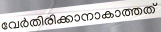
വേർതിരിക്കാനാകാത്തത്